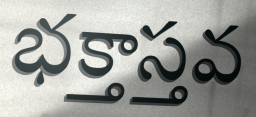
భక్తాస్తవ